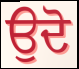
ਉਦੋ